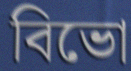
বিভো